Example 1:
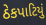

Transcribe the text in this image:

ઠેકપાટિયું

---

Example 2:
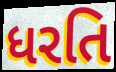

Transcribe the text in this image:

ધરતિ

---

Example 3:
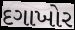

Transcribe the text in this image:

દગાખોર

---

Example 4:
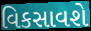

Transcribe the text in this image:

વિકસાવશે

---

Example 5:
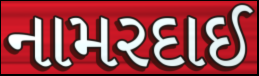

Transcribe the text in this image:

નામરદાઈ